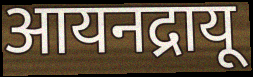
आयनद्रायू